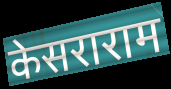
केसराराम